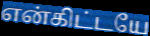
என்கிட்டயே